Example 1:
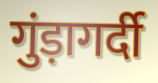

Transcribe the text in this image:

गुंड़ागर्दी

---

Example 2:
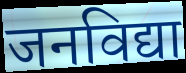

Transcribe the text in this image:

जनविद्या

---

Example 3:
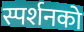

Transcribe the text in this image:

स्पर्शनको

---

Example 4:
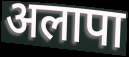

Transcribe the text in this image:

अलापा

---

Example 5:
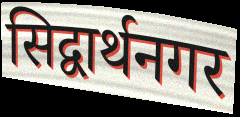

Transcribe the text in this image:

सिद्वार्थनगर